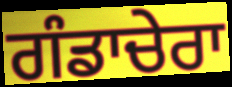
ਗੰਡਾਚੇਰਾ